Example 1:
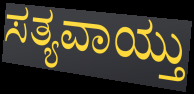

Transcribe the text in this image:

ಸತ್ಯವಾಯ್ತು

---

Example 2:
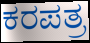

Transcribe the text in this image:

ಕರಪತ್ರ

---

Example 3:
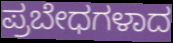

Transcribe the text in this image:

ಪ್ರಬೇಧಗಳಾದ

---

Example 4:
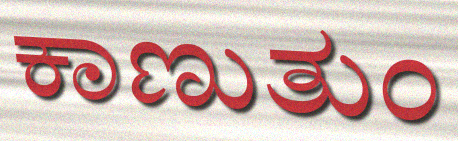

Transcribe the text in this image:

ಕಾಣುತುಂ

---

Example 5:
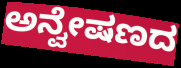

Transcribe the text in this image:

ಅನ್ವೇಷಣದ